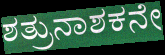
ಶತ್ರುನಾಶಕನೇ